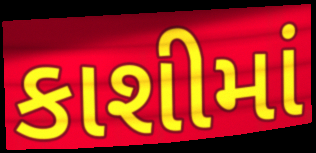
કાશીમાં